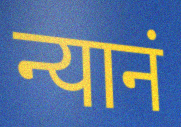
न्यानं